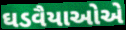
ઘડવૈયાઓએ